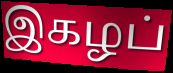
இகழப்